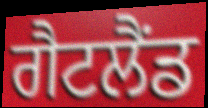
ਗੈਟਲੈਂਡ